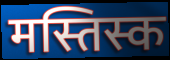
मस्तिस्क